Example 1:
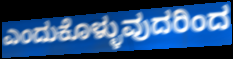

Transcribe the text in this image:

ಎಂದುಕೊಳ್ಳುವುದರಿಂದ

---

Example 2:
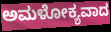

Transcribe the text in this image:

ಅಮಳೋಕ್ಯವಾದ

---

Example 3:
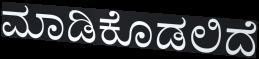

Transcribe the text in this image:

ಮಾಡಿಕೊಡಲಿದೆ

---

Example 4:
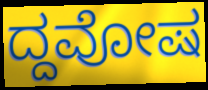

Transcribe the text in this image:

ದ್ದವೋಷ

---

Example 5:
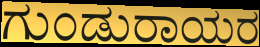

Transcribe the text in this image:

ಗುಂಡುರಾಯರ